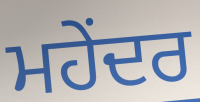
ਮਹੇਂਦਰ